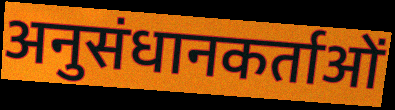
अनुसंधानकर्ताओं